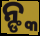
ନ୍ଙ୍କ